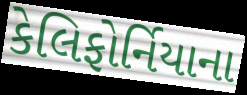
કેલિફોર્નિયાના